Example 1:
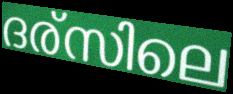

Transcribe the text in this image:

ദര്സിലെ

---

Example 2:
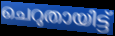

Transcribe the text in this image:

ചെറുതായിട്ട്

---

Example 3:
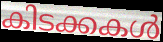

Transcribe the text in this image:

കിടക്കകൾ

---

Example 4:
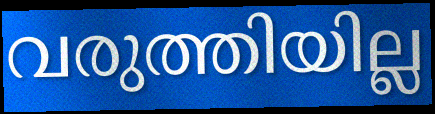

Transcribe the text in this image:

വരുത്തിയില്ല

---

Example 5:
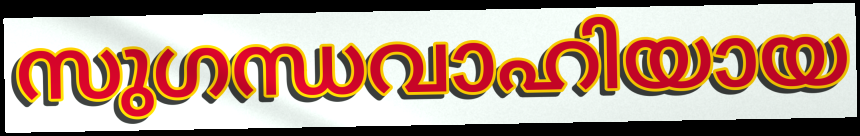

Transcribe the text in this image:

സുഗന്ധവാഹിയായ